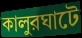
কালুরঘাটে